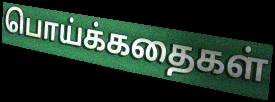
பொய்க்கதைகள்